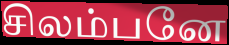
சிலம்பனே